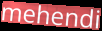
mehendi